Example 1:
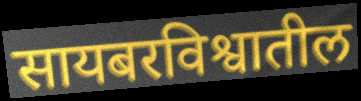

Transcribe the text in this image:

सायबरविश्वातील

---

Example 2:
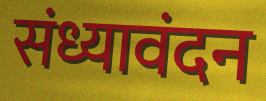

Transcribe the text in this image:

संध्यावंदन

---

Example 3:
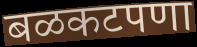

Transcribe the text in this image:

बळकटपणा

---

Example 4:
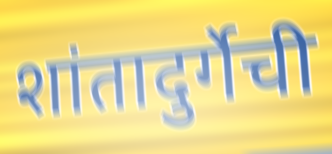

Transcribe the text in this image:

शांतादुर्गेची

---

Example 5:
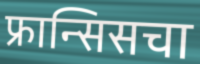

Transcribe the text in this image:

फ्रान्सिसचा